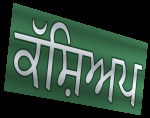
ਕੱਸ਼ਿਅਪ